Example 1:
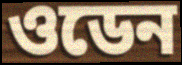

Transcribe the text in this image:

ওডেন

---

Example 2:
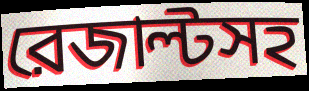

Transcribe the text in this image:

রেজাল্টসহ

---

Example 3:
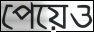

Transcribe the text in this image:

পেয়েও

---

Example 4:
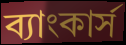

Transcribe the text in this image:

ব্যাংকার্স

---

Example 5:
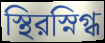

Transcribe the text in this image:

স্থিরস্নিগ্ধ